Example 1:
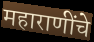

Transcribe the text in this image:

महाराणींचे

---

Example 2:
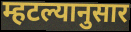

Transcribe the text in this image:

म्हटल्यानुसार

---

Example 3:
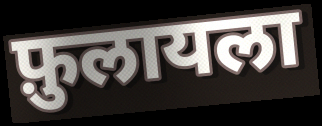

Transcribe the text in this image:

फ़ुलायला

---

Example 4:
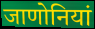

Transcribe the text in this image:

जाणोनियां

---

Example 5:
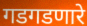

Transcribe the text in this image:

गडगडणारे